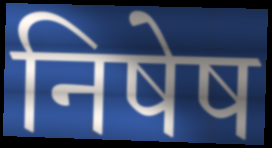
निषेष